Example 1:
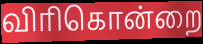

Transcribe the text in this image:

விரிகொன்றை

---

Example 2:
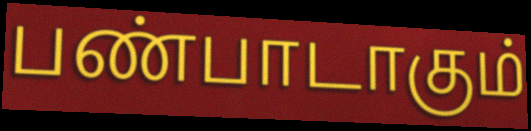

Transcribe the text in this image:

பண்பாடாகும்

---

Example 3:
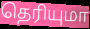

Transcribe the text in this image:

தெரியுமா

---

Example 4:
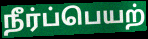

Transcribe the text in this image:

நீர்ப்பெயற்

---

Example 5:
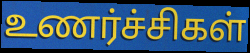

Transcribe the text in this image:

உணர்ச்சிகள்